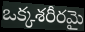
ఒక్కశరీరమై